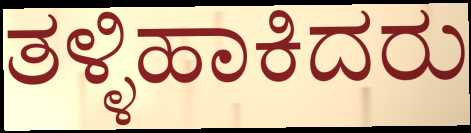
ತಳ್ಳಿಹಾಕಿದರು